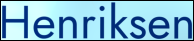
Henriksen